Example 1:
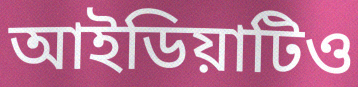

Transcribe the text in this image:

আইডিয়াটিও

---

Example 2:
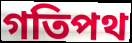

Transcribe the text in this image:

গতিপথ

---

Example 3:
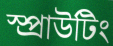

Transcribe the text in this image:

স্প্রাউটিং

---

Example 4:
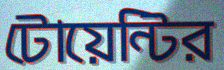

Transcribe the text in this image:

টোয়েন্টির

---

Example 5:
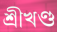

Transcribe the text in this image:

শ্রীখণ্ড